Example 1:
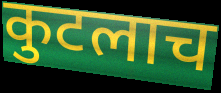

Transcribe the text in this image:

कुटलाच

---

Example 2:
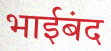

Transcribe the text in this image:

भाईबंद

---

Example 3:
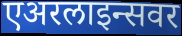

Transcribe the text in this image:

एअरलाइन्सवर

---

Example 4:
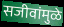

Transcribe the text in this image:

सजीवांमुळे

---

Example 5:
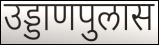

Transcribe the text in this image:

उड्डाणपुलास